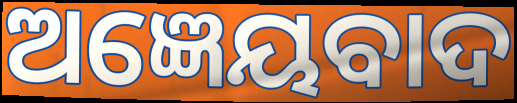
ଅଜ୍ଞେୟବାଦ